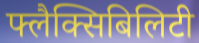
फ्लैक्सिबिलिटी